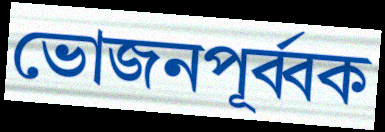
ভোজনপূর্ব্বক